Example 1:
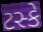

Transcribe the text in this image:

ટસ્કે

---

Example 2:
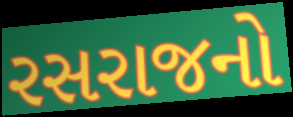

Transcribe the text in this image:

રસરાજનો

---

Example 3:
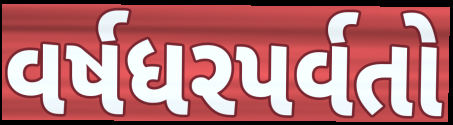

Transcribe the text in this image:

વર્ષધરપર્વતો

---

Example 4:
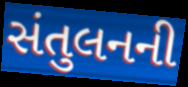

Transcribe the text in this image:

સંતુલનની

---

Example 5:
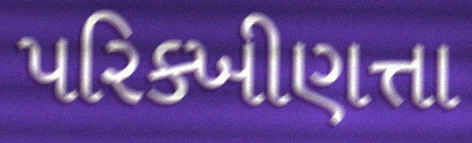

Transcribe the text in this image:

પરિક્ખીણત્તા